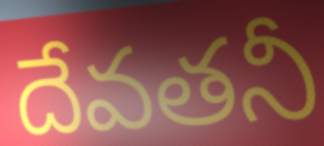
దేవతనీ